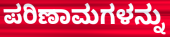
ಪರಿಣಾಮಗಳನ್ನು